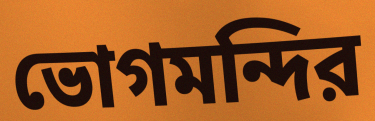
ভোগমন্দির